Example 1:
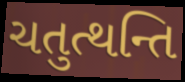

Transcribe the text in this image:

ચતુત્થન્તિ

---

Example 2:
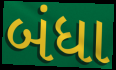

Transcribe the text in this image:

બંધા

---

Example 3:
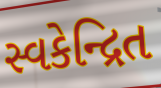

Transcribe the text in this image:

સ્વકેન્દ્રિત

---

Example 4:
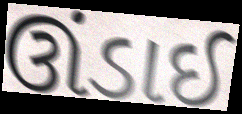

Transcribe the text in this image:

ઊંડાઈ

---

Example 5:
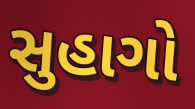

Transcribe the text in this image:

સુહાગો